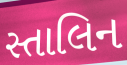
સ્તાલિન